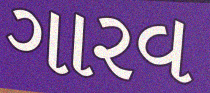
ગારવ